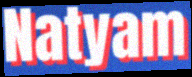
Natyam